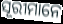
ସୂରୀମାନେ